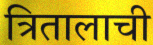
त्रितालाची